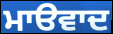
ਮਾੳਵਾਦ